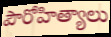
పౌరోహిత్యాలు